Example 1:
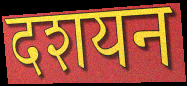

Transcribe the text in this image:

दशयन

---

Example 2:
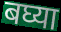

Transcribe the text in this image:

बघ्या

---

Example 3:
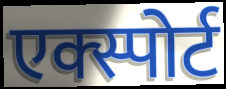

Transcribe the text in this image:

एक्‍स्पोर्ट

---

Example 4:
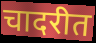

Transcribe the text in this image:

चादरीत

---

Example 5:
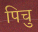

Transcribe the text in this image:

पिचु